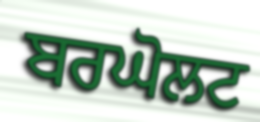
ਬਰਘੋਲਟ